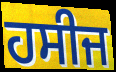
ਹਸੀਜ